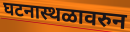
घटनास्थळावरुन